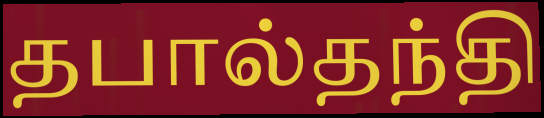
தபால்தந்தி